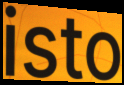
isto